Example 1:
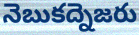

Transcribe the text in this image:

నెబుకద్నెజరు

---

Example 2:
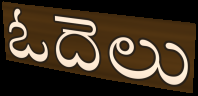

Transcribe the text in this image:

ఓదెలు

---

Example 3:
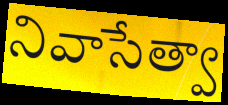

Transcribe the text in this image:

నివాసేత్వా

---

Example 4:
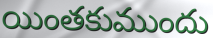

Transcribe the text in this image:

యింతకుముందు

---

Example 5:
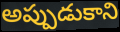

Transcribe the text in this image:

అప్పుడుకాని